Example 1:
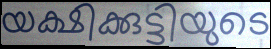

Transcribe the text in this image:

യക്ഷിക്കുട്ടിയുടെ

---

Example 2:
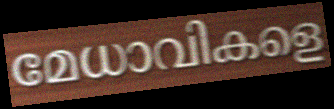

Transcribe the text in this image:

മേധാവികളെ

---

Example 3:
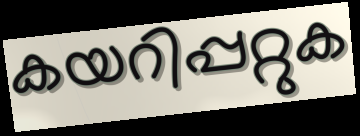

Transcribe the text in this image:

കയറിപ്പറ്റുക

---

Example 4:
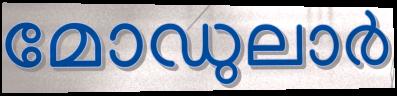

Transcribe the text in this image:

മോഡുലാർ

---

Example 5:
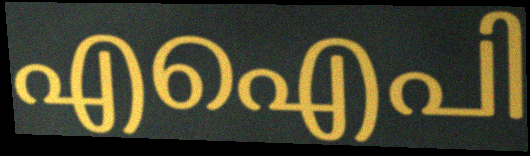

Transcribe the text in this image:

എഐപി